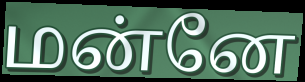
மன்னே